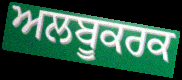
ਅਲਬੂਕਰਕ